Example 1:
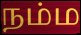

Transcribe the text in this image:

நம்ம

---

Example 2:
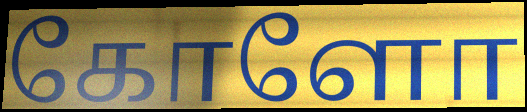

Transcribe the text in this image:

கோளோ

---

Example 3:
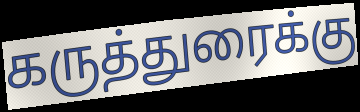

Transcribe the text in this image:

கருத்துரைக்கு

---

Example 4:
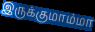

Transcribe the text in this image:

இருக்குமாம்மா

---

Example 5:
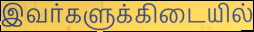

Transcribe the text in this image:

இவர்களுக்கிடையில்